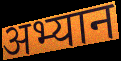
अभ्यान